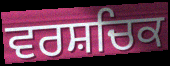
ਵਰਸ਼ਚਿਕ